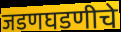
जडणघडणीचे